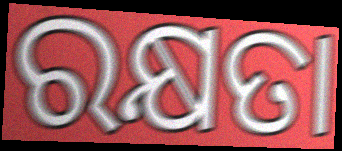
ରକ୍ଷତା